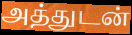
அத்துடன்